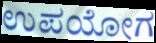
ಉಪಯೋಗ